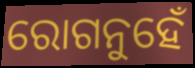
ରୋଗନୁହେଁ